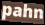
pahn